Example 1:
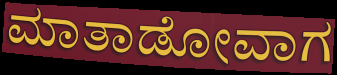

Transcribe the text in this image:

ಮಾತಾಡೋವಾಗ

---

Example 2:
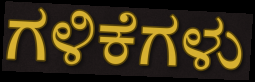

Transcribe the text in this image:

ಗಳಿಕೆಗಳು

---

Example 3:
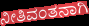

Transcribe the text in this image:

ನೀತಿವಂತನಾಗಿ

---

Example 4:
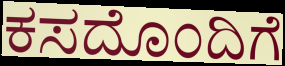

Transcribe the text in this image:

ಕಸದೊಂದಿಗೆ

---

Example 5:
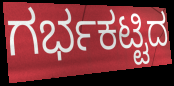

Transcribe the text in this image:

ಗರ್ಭಕಟ್ಟಿದ